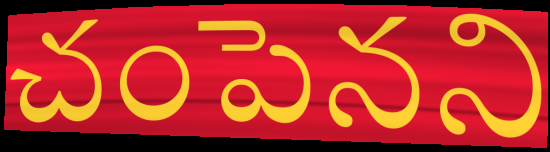
చంపెనని